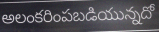
అలంకరింపబడియున్నదో